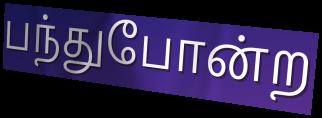
பந்துபோன்ற